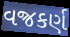
વજ્રકર્ણ